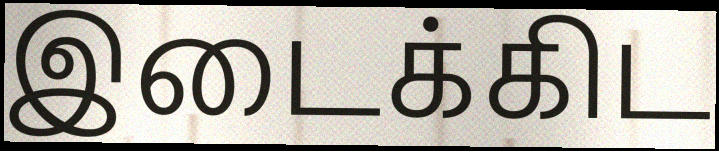
இடைக்கிட